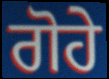
ਗੋਹੇ